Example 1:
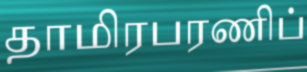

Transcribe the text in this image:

தாமிரபரணிப்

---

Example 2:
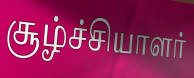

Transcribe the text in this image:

சூழ்ச்சியாளர்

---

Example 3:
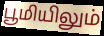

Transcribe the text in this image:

பூமியிலும்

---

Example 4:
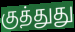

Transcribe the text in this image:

குத்துது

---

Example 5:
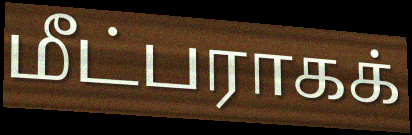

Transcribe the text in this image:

மீட்பராகக்